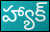
హ్యాక్